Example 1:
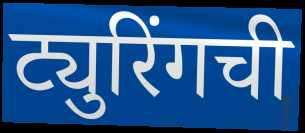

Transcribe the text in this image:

ट्युरिंगची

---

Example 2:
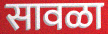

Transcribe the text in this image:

सावळा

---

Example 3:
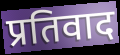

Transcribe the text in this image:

प्रतिवाद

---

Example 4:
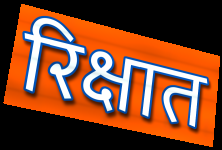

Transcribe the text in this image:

रिक्षात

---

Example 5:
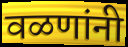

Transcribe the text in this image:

वळणांनी